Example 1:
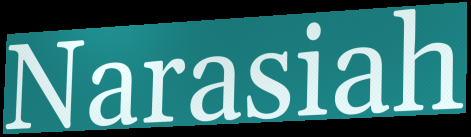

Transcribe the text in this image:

Narasiah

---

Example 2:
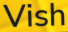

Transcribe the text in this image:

Vish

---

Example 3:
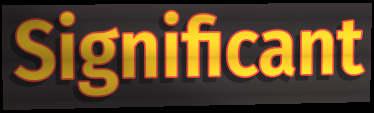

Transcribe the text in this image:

Significant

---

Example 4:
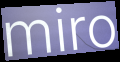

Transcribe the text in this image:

miro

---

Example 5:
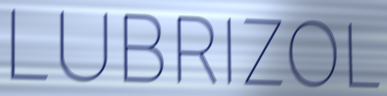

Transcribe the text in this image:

LUBRIZOL